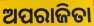
ଅପରାଜିତା